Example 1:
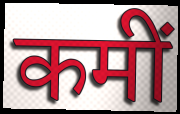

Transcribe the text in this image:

कमीं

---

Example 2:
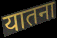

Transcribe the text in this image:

यातना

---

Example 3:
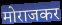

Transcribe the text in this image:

मोराजकर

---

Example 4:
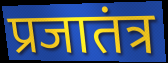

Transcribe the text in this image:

प्रजातंत्र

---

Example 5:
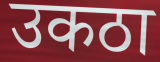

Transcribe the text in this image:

उकठा